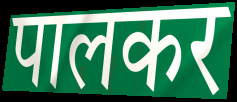
पालकर